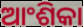
ଆଂଶିକା